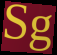
Sg